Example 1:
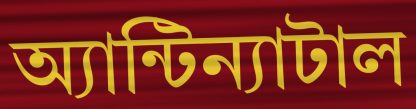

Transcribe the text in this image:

অ্যান্টিন্যাটাল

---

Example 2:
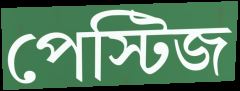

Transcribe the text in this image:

পেস্টিজ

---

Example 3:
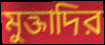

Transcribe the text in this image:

মুক্তাদির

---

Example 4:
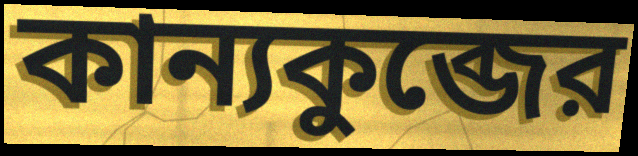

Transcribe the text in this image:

কান্যকুব্জের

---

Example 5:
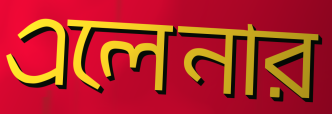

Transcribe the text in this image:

এলেনার